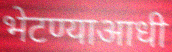
भेटण्याआधी